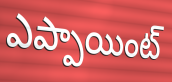
ఎప్పాయింట్